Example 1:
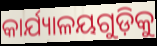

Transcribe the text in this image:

କାର୍ଯ୍ୟାଳୟଗୁଡ଼ିକୁ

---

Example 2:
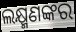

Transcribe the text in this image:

ଲକ୍ଷ୍ମଣଙ୍କର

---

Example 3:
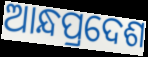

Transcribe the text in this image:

ଆନ୍ଧପ୍ରଦେଶ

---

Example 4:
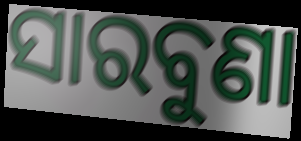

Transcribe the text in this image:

ସାରବୁଣା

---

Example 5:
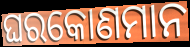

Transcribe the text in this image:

ଘରକୋଣମାନ